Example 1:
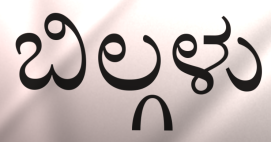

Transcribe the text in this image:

ಬಿಲ್ಗಳು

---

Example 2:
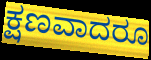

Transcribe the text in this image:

ಕ್ಷಣವಾದರೂ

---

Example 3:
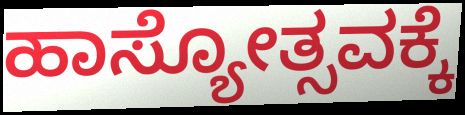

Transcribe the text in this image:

ಹಾಸ್ಯೋತ್ಸವಕ್ಕೆ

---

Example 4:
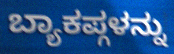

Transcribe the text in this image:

ಬ್ಯಾಕಪ್ಗಳನ್ನು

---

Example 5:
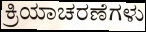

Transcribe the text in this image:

ಕ್ರಿಯಾಚರಣೆಗಳು